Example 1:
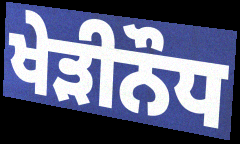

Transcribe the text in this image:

ਖੇੜੀਨੌਧ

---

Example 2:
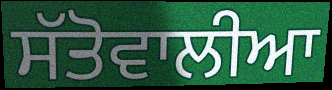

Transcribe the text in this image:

ਸੱਤੋਵਾਲੀਆ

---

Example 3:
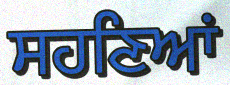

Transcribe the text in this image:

ਸਹਣਿਆਂ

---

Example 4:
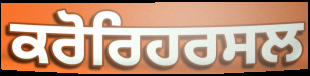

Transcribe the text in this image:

ਕਰੋਰਿਹਰਸਲ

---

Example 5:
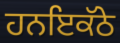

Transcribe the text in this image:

ਹਨਇਕੱਠੇ